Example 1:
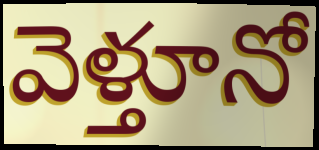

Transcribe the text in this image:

వెళ్తూనో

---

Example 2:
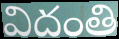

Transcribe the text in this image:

విదంతి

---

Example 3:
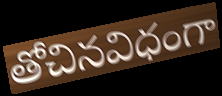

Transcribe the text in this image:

తోచినవిధంగా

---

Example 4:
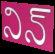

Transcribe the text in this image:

నిన్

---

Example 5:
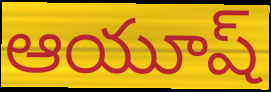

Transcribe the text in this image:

ఆయూష్